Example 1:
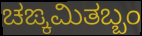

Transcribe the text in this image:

ಚಙ್ಕಮಿತಬ್ಬಂ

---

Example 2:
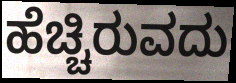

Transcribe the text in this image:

ಹೆಚ್ಚಿರುವದು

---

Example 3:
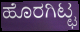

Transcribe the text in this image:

ಹೊರಗಿಟ್ಟ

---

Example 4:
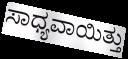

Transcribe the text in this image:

ಸಾಧ್ಯವಾಯಿತ್ತು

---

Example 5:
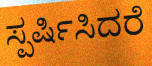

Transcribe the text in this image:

ಸ್ಪರ್ಷಿಸಿದರೆ